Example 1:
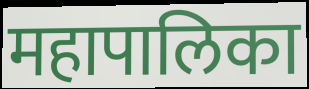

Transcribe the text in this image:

महापालिका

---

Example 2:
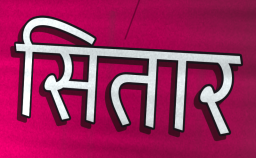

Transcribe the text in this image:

सितार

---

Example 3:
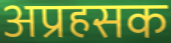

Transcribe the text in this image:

अप्रहसक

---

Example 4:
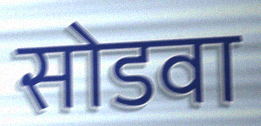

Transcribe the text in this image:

सोडवा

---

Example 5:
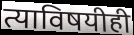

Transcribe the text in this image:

त्याविषयीही